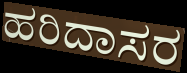
ಹರಿದಾಸರ